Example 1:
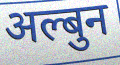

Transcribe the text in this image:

अल्बुन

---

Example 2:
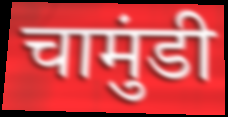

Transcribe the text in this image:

चामुंडी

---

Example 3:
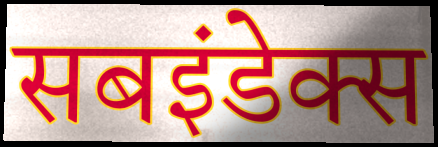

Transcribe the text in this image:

सबइंडेक्स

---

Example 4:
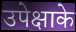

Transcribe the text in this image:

उपेक्षाके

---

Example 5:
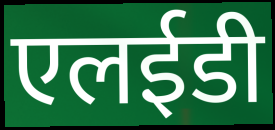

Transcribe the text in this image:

एलईडी